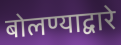
बोलण्याद्वारे